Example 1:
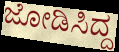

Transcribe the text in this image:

ಜೋಡಿಸಿದ್ದ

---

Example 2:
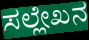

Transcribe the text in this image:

ಸಲ್ಲೇಖನ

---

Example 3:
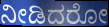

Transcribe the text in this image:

ನೀಡಿದರೋ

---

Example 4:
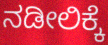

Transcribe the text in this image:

ನಡೀಲಿಕ್ಕೆ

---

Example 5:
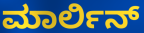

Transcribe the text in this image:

ಮಾರ್ಲಿನ್